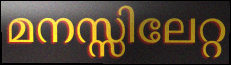
മനസ്സിലേറ്റ